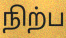
நிற்ப